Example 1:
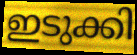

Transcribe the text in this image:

ഇടുക്കി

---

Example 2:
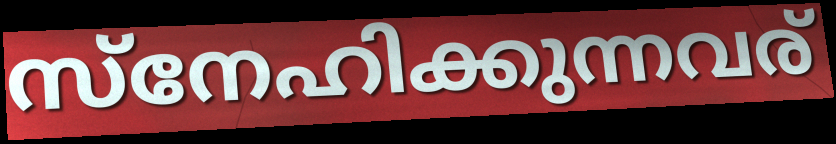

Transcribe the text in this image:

സ്നേഹിക്കുന്നവര്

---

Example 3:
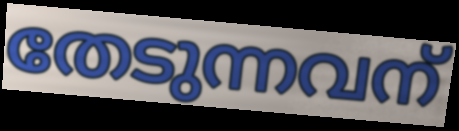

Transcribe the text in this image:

തേടുന്നവന്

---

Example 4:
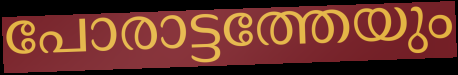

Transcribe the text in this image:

പോരാട്ടത്തേയും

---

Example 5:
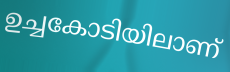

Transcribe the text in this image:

ഉച്ചകോടിയിലാണ്